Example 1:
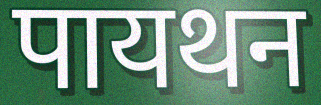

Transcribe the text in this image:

पायथन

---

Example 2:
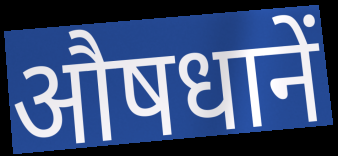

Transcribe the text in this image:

औषधानें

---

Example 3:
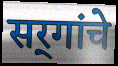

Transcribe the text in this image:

सर्गांचे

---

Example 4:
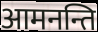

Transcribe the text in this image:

आमनन्ति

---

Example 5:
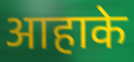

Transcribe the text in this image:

आहाके